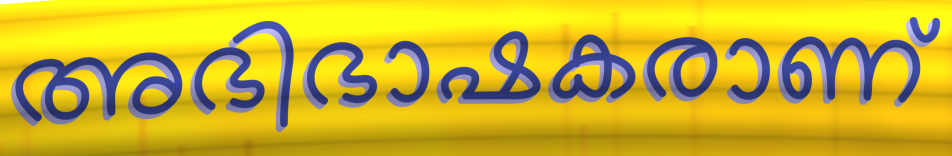
അഭിഭാഷകരാണ്